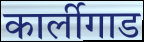
कार्लीगाड